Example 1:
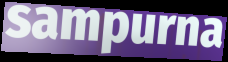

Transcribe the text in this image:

sampurna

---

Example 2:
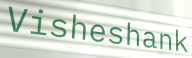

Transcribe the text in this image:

Visheshank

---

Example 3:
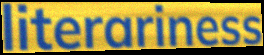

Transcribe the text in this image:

literariness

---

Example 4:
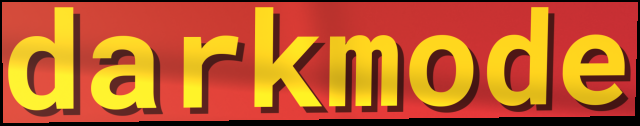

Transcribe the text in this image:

darkmode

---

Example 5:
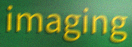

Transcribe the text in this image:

imaging